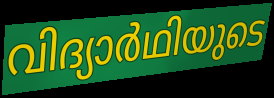
വിദ്യാർഥിയുടെ